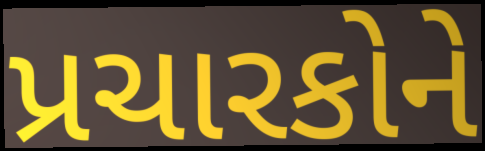
પ્રચારકોને